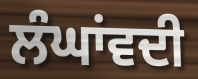
ਲੰਘਾਂਵਦੀ